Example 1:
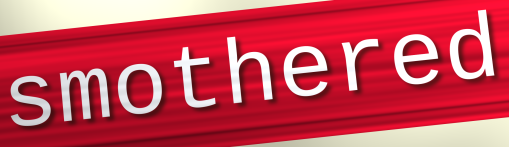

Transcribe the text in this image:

smothered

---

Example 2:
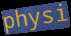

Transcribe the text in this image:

physi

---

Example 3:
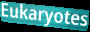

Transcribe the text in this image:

Eukaryotes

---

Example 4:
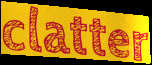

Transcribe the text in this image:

clatter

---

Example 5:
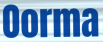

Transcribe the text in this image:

Oorma